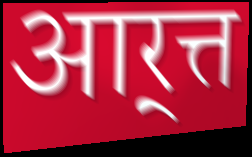
आर्त्त